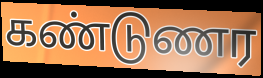
கண்டுணர